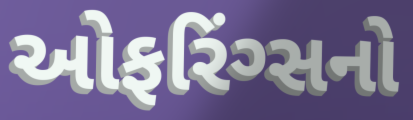
ઓફરિંગ્સનો